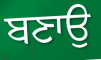
ਬਣਾਉ